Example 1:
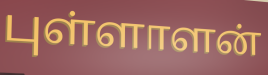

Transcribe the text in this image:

புள்ளாளன்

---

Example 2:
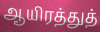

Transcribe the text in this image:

ஆயிரத்துத்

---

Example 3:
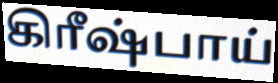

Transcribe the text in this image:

கிரீஷ்பாய்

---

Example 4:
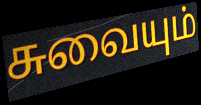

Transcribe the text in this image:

சுவையும்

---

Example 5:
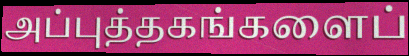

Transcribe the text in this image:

அப்புத்தகங்களைப்